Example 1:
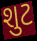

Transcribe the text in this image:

શુટ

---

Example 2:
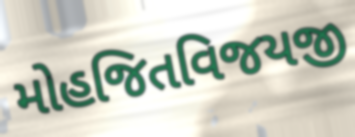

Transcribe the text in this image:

મોહજિતવિજયજી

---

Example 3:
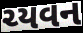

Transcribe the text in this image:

ચ્યવન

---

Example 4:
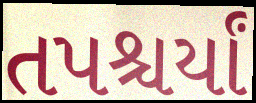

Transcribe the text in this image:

તપશ્ચર્યાં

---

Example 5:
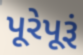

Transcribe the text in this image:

પૂરેપૂરૂં